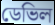
ডেভিল